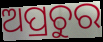
ଅପ୍ରଚୁର